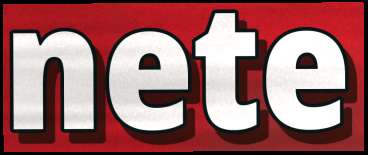
nete